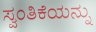
ಸ್ವಂತಿಕೆಯನ್ನು